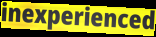
inexperienced